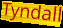
Tyndall